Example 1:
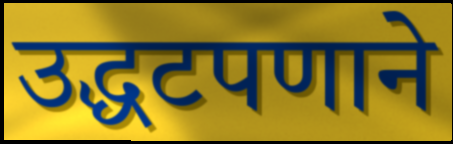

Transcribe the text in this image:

उद्धटपणाने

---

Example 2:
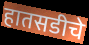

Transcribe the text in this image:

हातसडीचे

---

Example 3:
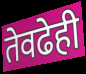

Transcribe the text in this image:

तेवढेही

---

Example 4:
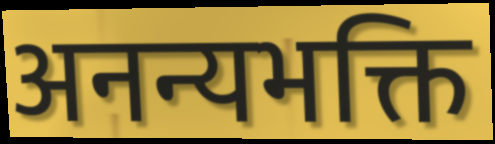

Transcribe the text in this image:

अनन्यभक्ति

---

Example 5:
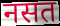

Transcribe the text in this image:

नसत